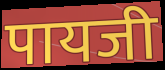
पायजी